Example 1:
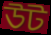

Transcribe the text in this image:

উট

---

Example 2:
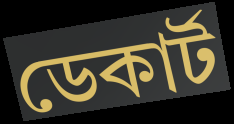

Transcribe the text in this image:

ডেকাৰ্ট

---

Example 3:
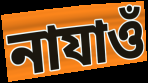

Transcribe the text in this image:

নাযাওঁ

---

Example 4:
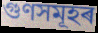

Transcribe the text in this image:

গুণসমূহৰ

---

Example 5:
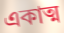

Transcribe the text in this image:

একাত্ম